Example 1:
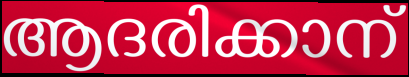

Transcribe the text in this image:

ആദരിക്കാന്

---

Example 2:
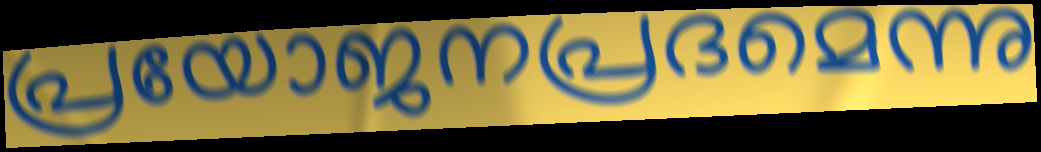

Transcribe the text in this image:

പ്രയോജനപ്രദമെന്നു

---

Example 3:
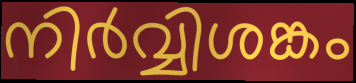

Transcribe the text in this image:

നിർവ്വിശങ്കം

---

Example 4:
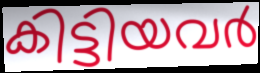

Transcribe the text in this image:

കിട്ടിയവർ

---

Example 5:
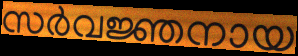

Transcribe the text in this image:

സർവജ്ഞനായ